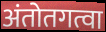
अंतोतगत्वा